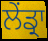
ਲੇਂਡ੍ਰਾ